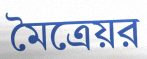
মৈত্রেয়র